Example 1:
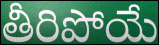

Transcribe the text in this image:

తీరిపోయే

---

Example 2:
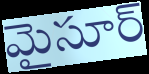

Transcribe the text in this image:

మైసూర్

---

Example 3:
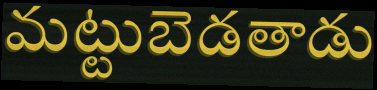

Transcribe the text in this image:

మట్టుబెడతాడు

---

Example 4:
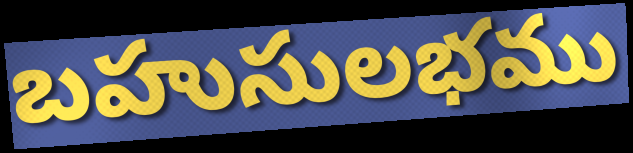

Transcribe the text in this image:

బహుసులభము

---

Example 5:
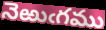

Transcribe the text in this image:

నెఱుఁగము